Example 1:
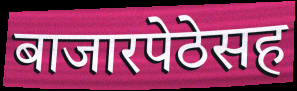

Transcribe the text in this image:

बाजारपेठेसह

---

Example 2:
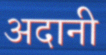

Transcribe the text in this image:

अदानी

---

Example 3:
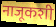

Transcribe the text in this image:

नाजूकशी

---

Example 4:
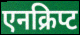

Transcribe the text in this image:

एनक्रिप्ट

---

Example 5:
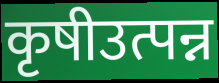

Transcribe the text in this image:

कृषीउत्पन्न